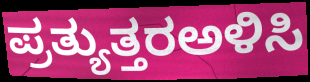
ಪ್ರತ್ಯುತ್ತರಅಳಿಸಿ